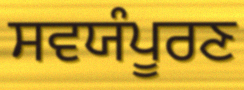
ਸਵਯੰਪੂਰਣ